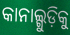
କାନାଲ୍ଗୁଡ଼ିକୁ